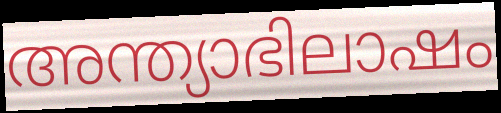
അന്ത്യാഭിലാഷം